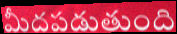
మీదపడుతుంది